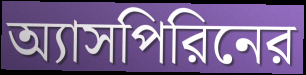
অ্যাসপিরিনের